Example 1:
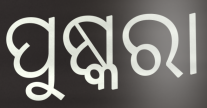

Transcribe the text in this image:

ପୁଷ୍କରା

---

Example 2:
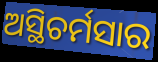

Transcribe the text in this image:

ଅସ୍ଥିଚର୍ମସାର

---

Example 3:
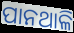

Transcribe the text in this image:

ପାନଥାଳି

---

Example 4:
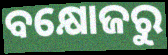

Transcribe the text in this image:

ବକ୍ଷୋଜରୁ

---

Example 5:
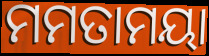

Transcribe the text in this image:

ମମତାମୟା